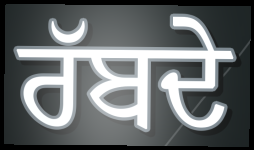
ਰੱਬਦੇ